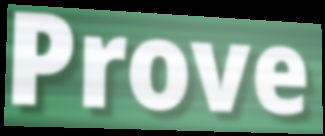
Prove